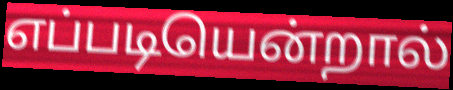
எப்படியென்றால்